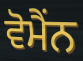
ਵੋਮੈਂਨ